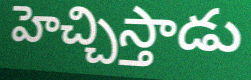
హెచ్చిస్తాడు